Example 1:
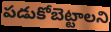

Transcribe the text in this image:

పడుకోబెట్టాలని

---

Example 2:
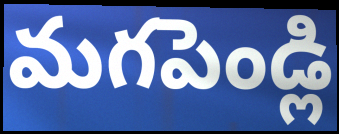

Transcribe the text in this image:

మగపెండ్లి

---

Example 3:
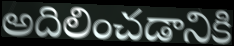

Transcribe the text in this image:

అదిలించడానికి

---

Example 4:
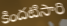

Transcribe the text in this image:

కిందటిసారి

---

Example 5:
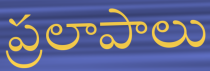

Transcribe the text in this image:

ప్రలాపాలు